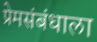
प्रेमसंबंधाला